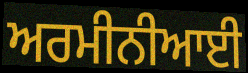
ਅਰਮੀਨੀਆਈ